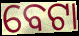
ବେଟା